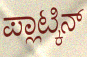
ಪ್ಲಾಟ್ಕಿನ್